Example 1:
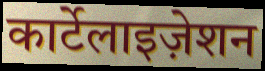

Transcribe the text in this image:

कार्टेलाइज़ेशन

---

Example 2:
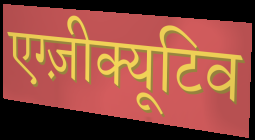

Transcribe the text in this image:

एग्ज़ीक्यूटिव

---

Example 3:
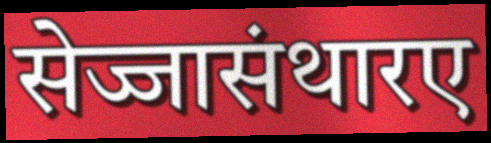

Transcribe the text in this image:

सेज्जासंथारए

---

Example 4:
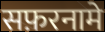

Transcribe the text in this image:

सफ़रनामे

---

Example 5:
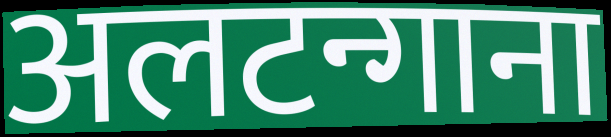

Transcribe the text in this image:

अलटन्गाना